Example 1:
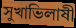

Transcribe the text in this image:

সুখাভিলাষী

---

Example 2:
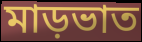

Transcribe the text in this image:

মাড়ভাত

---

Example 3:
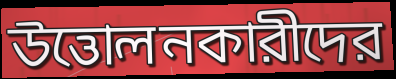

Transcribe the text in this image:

উত্তোলনকারীদের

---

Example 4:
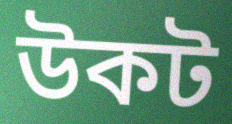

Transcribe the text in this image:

উকট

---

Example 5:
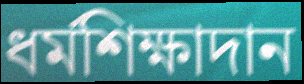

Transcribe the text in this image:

ধর্মশিক্ষাদান